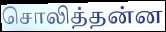
சொலித்தன்ன